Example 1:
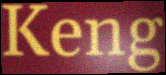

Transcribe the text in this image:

Keng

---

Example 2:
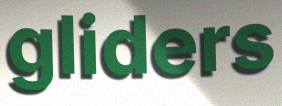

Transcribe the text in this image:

gliders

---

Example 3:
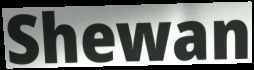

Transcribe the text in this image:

Shewan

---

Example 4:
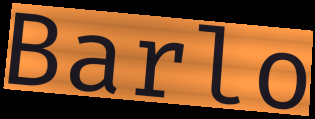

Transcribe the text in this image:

Barlo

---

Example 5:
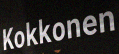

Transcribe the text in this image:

Kokkonen